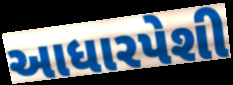
આધારપેશી